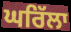
ਘਰਿੱਲਾ